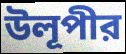
উলূপীর